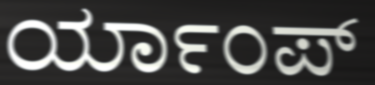
ರ್ಯಾಂಪ್